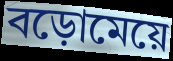
বড়োমেয়ে